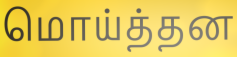
மொய்த்தன